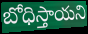
బోధిస్తాయని